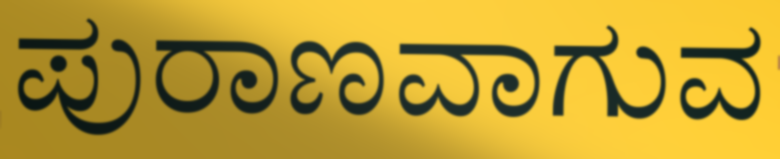
ಪುರಾಣವಾಗುವ